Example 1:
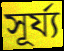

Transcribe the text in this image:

সূৰ্য্য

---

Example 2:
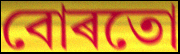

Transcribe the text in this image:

বোৰতো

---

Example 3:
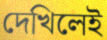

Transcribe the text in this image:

দেখিলেই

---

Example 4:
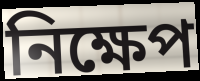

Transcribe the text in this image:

নিক্ষেপ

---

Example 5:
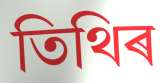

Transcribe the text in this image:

তিথিৰ